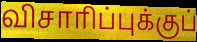
விசாரிப்புக்குப்